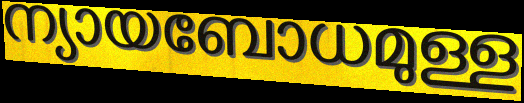
ന്യായബോധമുള്ള